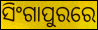
ସିଂଗାପୁରରେ